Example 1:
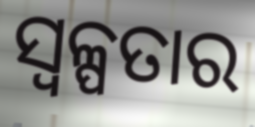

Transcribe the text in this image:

ସ୍ଵଳ୍ପତାର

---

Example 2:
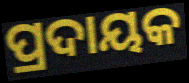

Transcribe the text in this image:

ପ୍ରଦାୟକ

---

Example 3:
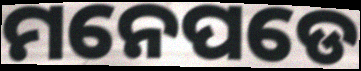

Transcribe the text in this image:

ମନେପଡେ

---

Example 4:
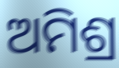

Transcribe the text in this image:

ଅମିଶ୍ର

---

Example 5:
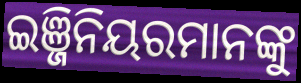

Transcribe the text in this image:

ଇଞ୍ଜିନିୟରମାନଙ୍କୁ